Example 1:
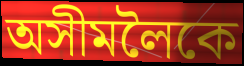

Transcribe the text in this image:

অসীমলৈকে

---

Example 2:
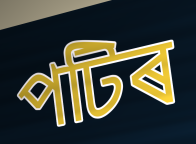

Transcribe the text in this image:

পটিৰ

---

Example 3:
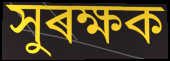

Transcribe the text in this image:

সুৰক্ষক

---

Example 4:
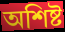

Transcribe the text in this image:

অশিষ্ট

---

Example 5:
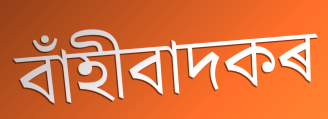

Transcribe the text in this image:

বাঁহীবাদকৰ